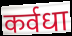
कर्वधा